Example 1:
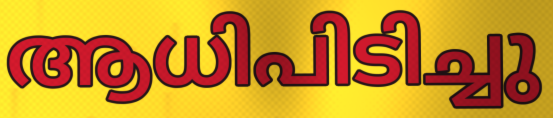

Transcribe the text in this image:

ആധിപിടിച്ചു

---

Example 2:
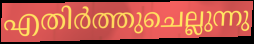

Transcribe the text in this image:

എതിർത്തുചെല്ലുന്നു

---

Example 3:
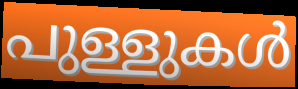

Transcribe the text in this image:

പുള്ളുകൾ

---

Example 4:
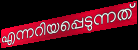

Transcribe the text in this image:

എന്നറിയപ്പെടുന്നത്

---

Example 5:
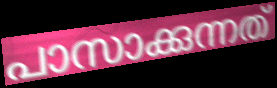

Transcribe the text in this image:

പാസാക്കുന്നത്